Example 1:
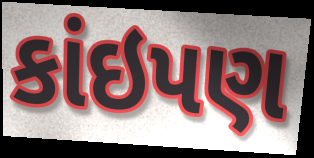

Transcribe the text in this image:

કાંઇપણ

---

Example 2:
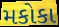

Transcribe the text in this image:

મકોકા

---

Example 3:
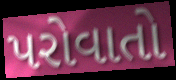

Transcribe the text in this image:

પરોવાતો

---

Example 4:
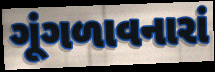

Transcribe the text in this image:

ગૂંગળાવનારાં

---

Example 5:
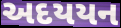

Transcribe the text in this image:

અદયયન